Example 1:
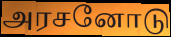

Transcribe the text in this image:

அரசனோடு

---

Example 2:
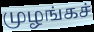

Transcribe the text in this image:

முழங்கச்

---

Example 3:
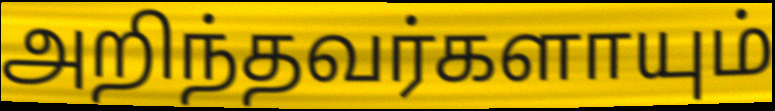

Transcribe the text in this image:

அறிந்தவர்களாயும்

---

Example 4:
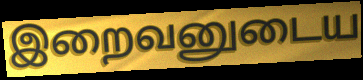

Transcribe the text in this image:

இறைவனுடைய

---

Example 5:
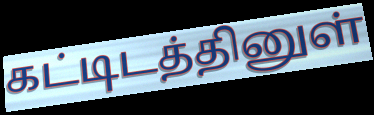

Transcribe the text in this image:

கட்டிடத்தினுள்